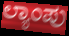
ಲ್ಯಾಂಪು